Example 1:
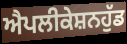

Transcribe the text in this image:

ਐਪਲੀਕੇਸ਼ਨਹੁੱਡ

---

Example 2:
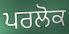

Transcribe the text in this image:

ਪਰਲੋਕ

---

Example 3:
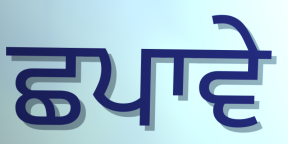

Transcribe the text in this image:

ਛਪਾਵੇ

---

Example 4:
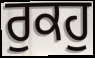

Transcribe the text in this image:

ਰੁਕਹੁ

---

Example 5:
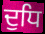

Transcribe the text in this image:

ਦੁਧਿ